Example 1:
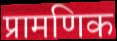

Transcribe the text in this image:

प्रामणिक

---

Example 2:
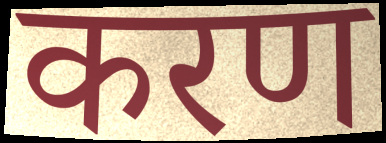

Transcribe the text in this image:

करण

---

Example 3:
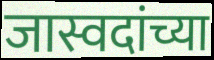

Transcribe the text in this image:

जास्वदांच्या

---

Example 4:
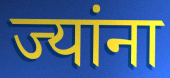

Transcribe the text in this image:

ज्यांना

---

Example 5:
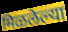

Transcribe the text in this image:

मिळलेल्या